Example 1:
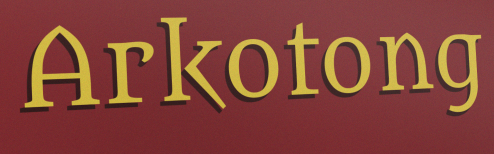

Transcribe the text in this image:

Arkotong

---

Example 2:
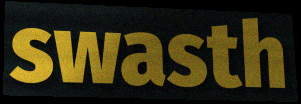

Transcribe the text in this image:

swasth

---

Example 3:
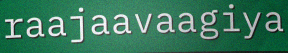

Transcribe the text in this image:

raajaavaagiya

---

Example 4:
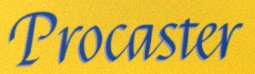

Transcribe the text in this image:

Procaster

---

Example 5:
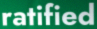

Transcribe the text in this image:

ratified